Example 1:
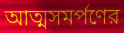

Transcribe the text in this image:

আত্মসমর্পণের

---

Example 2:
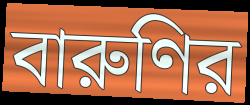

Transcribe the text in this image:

বারুণির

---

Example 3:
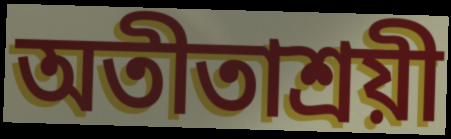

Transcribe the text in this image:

অতীতাশ্রয়ী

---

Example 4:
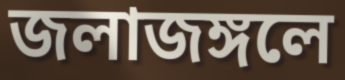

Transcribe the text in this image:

জলাজঙ্গলে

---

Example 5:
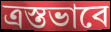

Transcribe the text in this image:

ত্রস্তভাবে